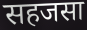
सहजसा